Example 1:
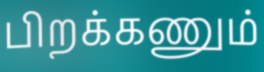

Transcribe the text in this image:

பிறக்கணும்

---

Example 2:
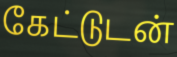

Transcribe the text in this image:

கேட்டுடன்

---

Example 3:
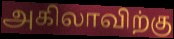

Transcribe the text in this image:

அகிலாவிற்கு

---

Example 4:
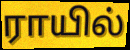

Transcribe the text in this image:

ராயில்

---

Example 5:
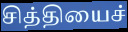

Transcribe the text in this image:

சித்தியைச்